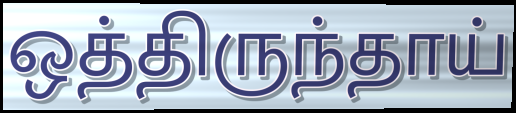
ஒத்திருந்தாய்